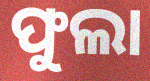
ଫୁଲା